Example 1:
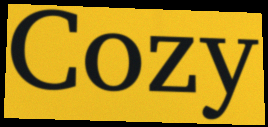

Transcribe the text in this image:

Cozy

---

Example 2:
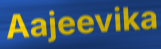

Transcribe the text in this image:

Aajeevika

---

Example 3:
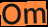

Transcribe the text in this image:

Om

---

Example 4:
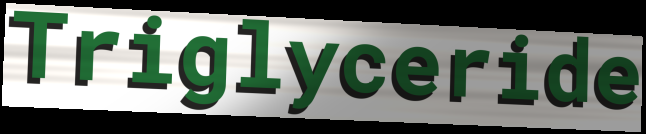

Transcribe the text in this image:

Triglyceride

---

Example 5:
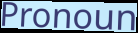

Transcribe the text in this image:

Pronoun